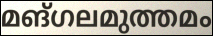
മങ്ഗലമുത്തമം